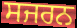
ਸਜਰਨ